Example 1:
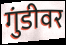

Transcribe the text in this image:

गुंडीवर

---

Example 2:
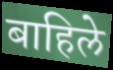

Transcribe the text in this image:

बाहिले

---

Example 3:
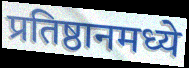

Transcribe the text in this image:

प्रतिष्ठानमध्ये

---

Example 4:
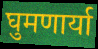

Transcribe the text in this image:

घुमणार्या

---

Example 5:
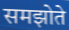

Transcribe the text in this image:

समझोते